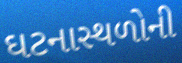
ઘટનાસ્થળોની